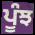
ਪੂੰਝ